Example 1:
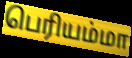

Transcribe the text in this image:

பெரியம்மா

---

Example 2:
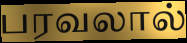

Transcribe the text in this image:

பரவலால்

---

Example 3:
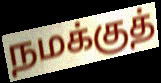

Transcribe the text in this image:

நமக்குத்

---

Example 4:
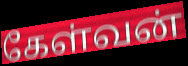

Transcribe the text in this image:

கேள்வன்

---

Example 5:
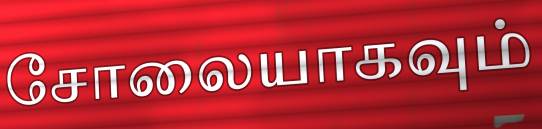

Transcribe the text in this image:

சோலையாகவும்